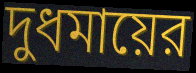
দুধমায়ের